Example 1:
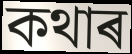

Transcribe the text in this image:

কথাৰ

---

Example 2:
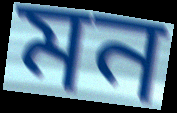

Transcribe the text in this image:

মন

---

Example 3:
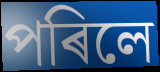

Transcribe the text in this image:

পৰিলে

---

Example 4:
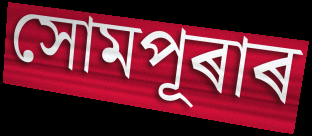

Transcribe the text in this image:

সোমপূৰাৰ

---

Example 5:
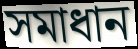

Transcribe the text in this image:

সমাধান